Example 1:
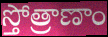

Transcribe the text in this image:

స్తోత్రాణాం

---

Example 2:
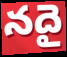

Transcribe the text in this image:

నదై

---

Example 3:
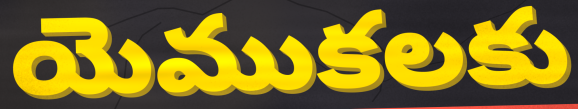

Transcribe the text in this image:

యెముకలకు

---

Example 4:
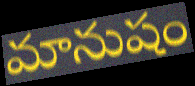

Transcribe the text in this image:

మానుషం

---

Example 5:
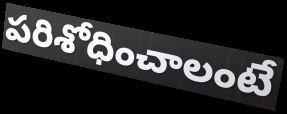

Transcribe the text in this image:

పరిశోధించాలంటే